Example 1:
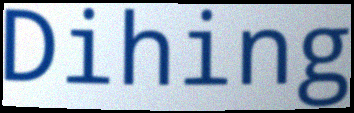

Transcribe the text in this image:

Dihing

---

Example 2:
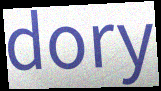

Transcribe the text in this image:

dory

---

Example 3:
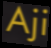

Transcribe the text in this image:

Aji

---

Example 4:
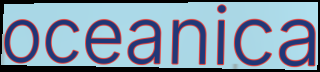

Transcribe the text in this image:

oceanica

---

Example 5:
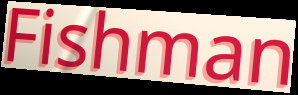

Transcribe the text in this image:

Fishman